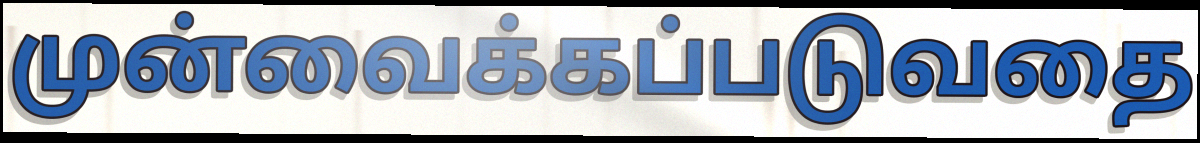
முன்வைக்கப்படுவதை